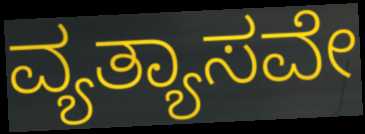
ವ್ಯತ್ಯಾಸವೇ